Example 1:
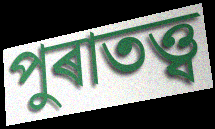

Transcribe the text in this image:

পুৰাতত্ত্ব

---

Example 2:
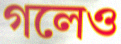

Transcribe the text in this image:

গলেও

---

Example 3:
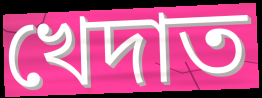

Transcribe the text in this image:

খেদাত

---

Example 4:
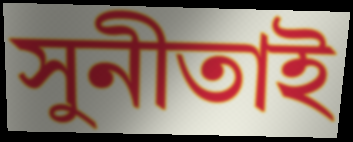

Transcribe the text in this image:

সুনীতাই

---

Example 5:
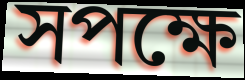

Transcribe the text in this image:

সপক্ষে